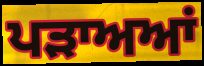
ਪੜਾਅਆਂ